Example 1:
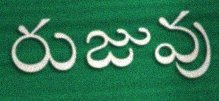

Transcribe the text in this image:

రుజువు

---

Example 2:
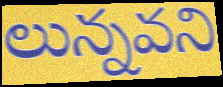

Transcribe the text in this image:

లున్నవని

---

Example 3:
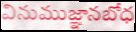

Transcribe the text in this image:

వినుముజ్ఞానబోధ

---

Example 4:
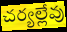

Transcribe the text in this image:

చర్యల్లేవు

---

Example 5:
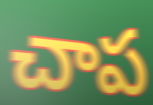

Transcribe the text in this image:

చాప